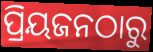
ପ୍ରିୟଜନଠାରୁ